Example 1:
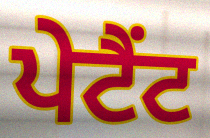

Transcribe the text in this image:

ਪੇਟੈਂਟ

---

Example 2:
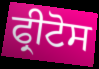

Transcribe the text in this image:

ਫ੍ਰੀਟੋਸ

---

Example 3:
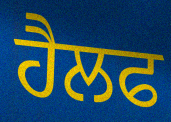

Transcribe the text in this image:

ਹੈਲਫ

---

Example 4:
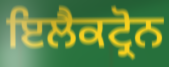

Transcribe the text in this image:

ਇਲੈਕਟ੍ਰੋਨ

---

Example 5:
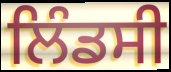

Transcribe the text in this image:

ਲਿੰਡਸੀ